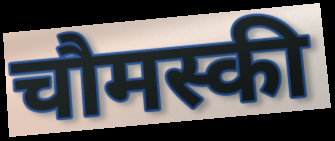
चौमस्की